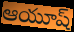
ఆయూష్